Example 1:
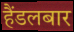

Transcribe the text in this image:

हैंडलबार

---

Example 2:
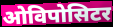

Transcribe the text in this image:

ओविपोसिटर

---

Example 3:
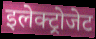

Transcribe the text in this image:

इलेक्ट्रोजेट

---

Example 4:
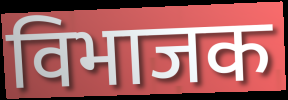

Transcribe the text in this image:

विभाजक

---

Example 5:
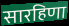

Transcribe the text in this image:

सारहिणा